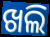
ଖଲି